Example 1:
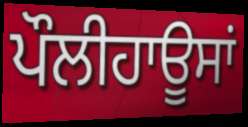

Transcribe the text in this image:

ਪੌਲੀਹਾਊਸਾਂ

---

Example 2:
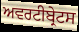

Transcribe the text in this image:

ਅਵਰਟੀਬ੍ਰੇਟਸ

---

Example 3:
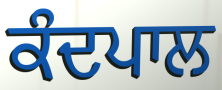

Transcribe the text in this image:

ਕੰਦਪਾਲ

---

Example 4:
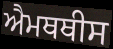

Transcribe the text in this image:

ਐਮਥਥੀਸ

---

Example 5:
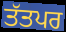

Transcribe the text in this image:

ਤੱਤਪਰ